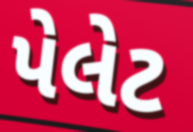
પેલેટ